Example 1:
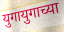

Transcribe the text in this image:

युगायुगाच्या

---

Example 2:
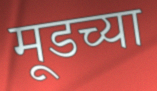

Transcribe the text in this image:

मूडच्या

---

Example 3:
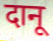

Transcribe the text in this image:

दानू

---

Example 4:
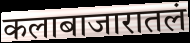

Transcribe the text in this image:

कलाबाजारातलं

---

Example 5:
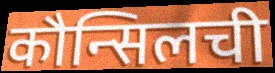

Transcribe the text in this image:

कौन्सिलची